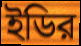
ইডির